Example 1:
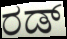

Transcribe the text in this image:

ರಡ್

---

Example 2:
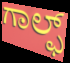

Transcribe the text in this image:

ಗಾಲ್ಫ್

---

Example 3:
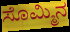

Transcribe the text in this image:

ಸೊಮ್ಮಿನ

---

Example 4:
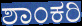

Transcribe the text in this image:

ಶಾಂಕರಿ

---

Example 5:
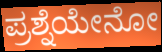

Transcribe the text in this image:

ಪ್ರಶ್ನೆಯೇನೋ